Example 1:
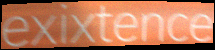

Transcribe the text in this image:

exixtence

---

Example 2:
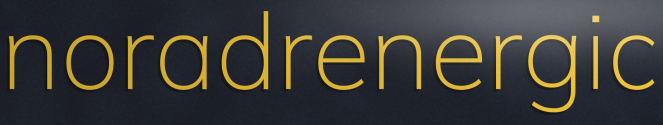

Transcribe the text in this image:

noradrenergic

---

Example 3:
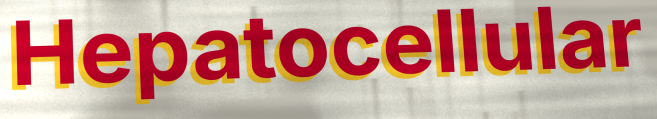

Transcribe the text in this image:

Hepatocellular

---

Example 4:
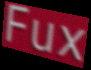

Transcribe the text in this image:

Fux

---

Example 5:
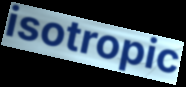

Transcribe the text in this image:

isotropic